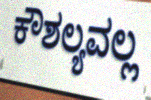
ಕೌಶಲ್ಯವಲ್ಲ